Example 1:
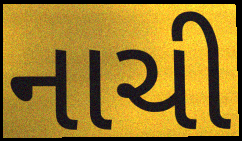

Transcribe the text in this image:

નાચી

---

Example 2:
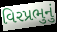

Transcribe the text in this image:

વિરપ્રભુનું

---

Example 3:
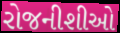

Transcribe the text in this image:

રોજનીશીઓ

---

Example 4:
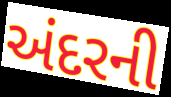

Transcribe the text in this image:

અંદરની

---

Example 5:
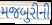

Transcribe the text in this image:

મજબુરીની